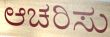
ಆಚರಿಸು